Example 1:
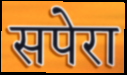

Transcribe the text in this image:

सपेरा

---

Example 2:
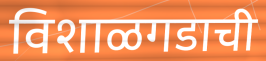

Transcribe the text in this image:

विशाळगडाची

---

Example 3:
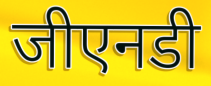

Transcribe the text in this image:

जीएनडी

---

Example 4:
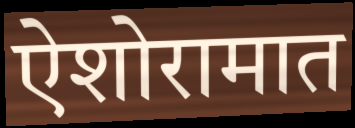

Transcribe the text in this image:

ऐशोरामात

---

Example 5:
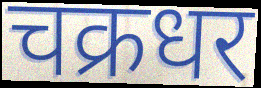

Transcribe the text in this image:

चक्रधर